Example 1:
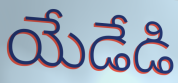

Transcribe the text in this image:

యేడేడి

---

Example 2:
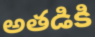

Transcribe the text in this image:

అతడికి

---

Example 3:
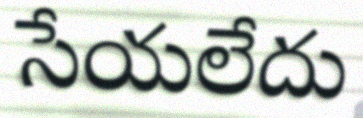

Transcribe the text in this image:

సేయలేదు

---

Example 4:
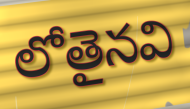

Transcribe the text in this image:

లోతైనవి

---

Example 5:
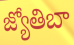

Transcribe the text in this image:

జ్యోతిబా